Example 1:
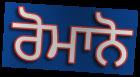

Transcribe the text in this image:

ਰੋਮਾਨੋ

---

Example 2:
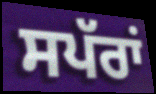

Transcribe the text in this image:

ਸਪੱਰਾਂ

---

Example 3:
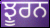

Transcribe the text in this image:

ਝੂਰਨ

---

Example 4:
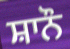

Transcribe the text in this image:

ਸ਼ਾਨੌ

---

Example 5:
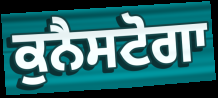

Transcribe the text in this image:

ਕੁਨੈਸਟੋਗਾ